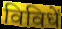
विविधें